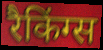
रैकिंग्स